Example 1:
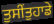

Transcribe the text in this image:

ਤੁਸੀਂਤੁਹਾਡੇ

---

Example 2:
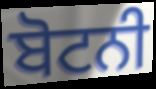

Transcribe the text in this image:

ਬੋਟਨੀ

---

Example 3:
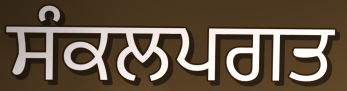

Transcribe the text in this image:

ਸੰਕਲਪਗਤ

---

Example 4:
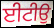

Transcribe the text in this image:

ਈਟੀਉ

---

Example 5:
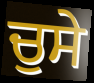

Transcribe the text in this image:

ਚੁਸੇ